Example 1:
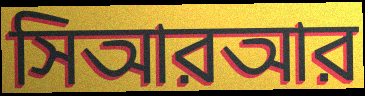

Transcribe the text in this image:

সিআরআর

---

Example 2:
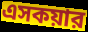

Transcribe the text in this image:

এসকয়ার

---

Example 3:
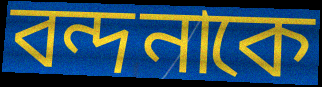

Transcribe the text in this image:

বন্দনাকে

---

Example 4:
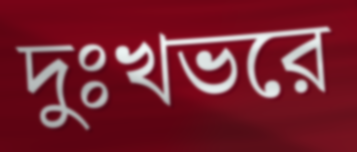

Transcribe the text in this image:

দুঃখভরে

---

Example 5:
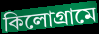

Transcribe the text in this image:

কিলোগ্রামে